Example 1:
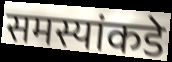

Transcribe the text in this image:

समस्यांकडे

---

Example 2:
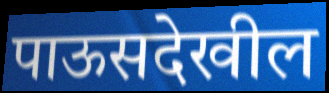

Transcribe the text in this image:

पाऊसदेखील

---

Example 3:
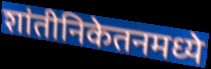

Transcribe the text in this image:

शांतीनिकेतनमध्ये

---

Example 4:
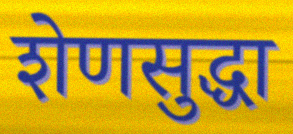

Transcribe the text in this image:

शेणसुद्धा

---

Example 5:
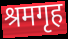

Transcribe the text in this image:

श्रमगृह